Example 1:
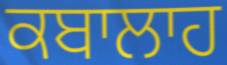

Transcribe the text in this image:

ਕਬਾਲਾਹ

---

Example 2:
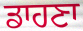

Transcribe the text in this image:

ਡਾਹਣਾ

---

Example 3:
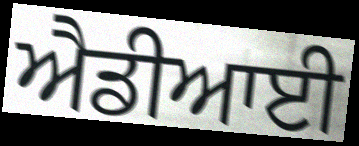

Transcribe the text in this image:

ਐਡੀਆਈ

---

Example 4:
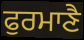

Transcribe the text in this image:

ਫੁਰਮਾਣੈ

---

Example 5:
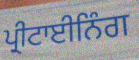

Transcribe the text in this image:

ਪ੍ਰੀਟਾਈਨਿੰਗ